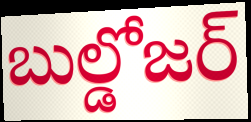
బుల్డోజర్